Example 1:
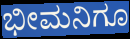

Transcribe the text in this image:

ಭೀಮನಿಗೂ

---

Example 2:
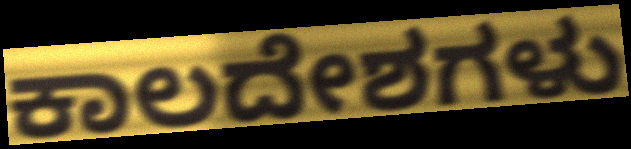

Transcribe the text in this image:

ಕಾಲದೇಶಗಳು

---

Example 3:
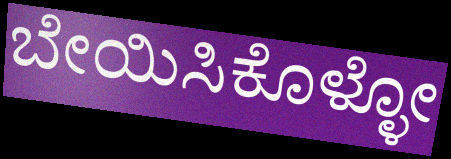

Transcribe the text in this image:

ಬೇಯಿಸಿಕೊಳ್ಳೋ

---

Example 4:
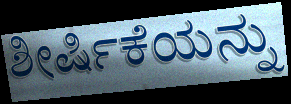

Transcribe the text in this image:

ಶೀರ್ಷಿಕೆಯನ್ನು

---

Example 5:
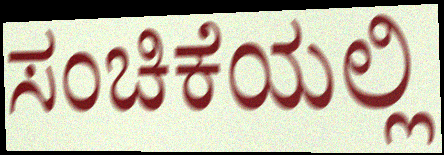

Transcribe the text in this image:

ಸಂಚಿಕೆಯಲ್ಲಿ